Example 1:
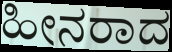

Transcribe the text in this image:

ಹೀನರಾದ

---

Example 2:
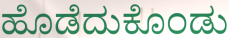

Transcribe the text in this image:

ಹೊಡೆದುಕೊಂಡು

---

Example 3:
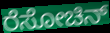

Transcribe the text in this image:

ರೆಸೋಚಿನ್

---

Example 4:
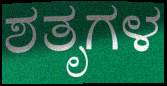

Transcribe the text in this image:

ಶತೃಗಳ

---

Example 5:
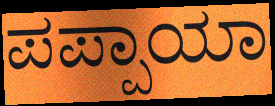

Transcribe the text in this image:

ಪಪ್ಪಾಯಾ